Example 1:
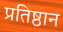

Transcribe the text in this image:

प्रतिष्ठान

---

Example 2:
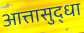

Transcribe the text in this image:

आत्तासुद्धा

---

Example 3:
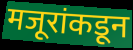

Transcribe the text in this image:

मजूरांकडून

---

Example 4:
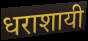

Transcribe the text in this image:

धराशायी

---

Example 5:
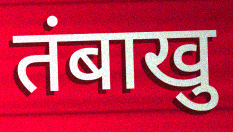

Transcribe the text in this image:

तंबाखु